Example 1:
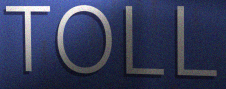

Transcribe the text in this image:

TOLL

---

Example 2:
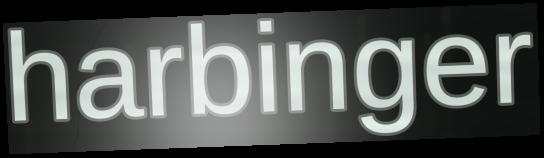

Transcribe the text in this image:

harbinger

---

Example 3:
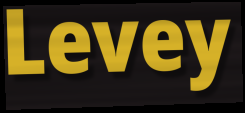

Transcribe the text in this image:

Levey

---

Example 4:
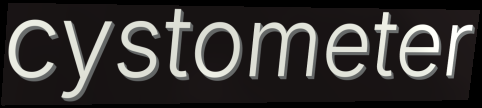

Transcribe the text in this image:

cystometer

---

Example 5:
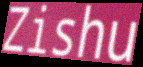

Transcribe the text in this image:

Zishu